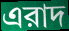
এরাদ